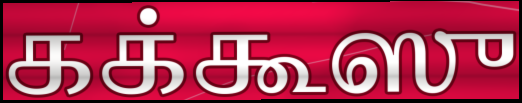
கக்கூஸு